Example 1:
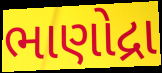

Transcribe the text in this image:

ભાણોદ્રા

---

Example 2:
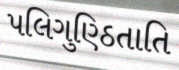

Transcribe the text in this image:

પલિગુણ્ઠિતાતિ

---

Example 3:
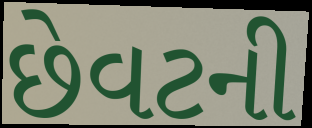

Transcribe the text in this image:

છેવટની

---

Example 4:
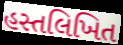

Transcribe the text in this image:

હસ્તલિખિત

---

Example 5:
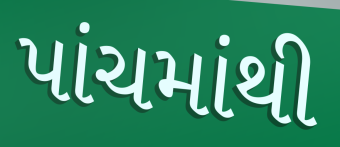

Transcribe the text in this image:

પાંચમાંથી